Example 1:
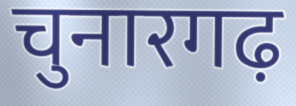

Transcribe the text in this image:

चुनारगढ़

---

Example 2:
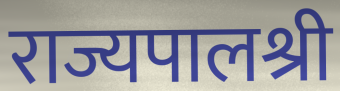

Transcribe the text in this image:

राज्यपालश्री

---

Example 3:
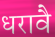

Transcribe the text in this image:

धरावै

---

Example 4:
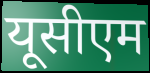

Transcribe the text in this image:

यूसीएम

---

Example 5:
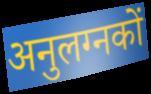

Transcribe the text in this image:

अनुलग्नकों